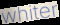
whiter